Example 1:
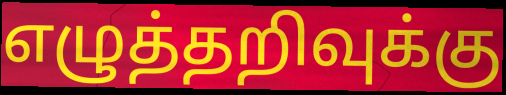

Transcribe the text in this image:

எழுத்தறிவுக்கு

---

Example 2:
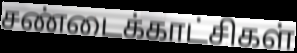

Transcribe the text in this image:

சண்டைக்காட்சிகள்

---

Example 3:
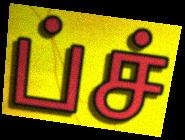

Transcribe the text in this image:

ப்ச்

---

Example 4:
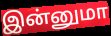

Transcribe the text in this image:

இன்னுமா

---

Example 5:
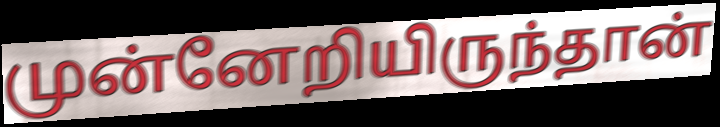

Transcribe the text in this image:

முன்னேறியிருந்தான்